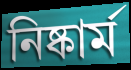
নিষ্কার্ম